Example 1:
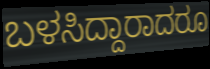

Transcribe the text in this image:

ಬಳಸಿದ್ದಾರಾದರೂ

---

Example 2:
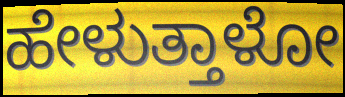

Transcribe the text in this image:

ಹೇಳುತ್ತಾಳೋ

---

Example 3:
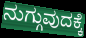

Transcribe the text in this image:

ನುಗ್ಗುವುದಕ್ಕೆ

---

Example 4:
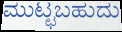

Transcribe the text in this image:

ಮುಟ್ಟಬಹುದು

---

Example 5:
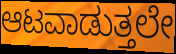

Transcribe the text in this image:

ಆಟವಾಡುತ್ತಲೇ